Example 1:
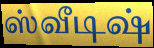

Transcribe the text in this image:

ஸ்வீடிஷ்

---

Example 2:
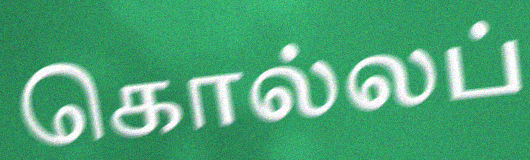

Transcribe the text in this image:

கொல்லப்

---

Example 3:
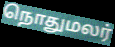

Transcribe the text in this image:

நொதுமலர்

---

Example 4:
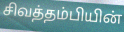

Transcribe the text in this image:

சிவத்தம்பியின்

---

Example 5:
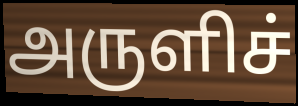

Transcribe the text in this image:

அருளிச்